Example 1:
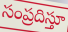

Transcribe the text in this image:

సంప్రదిస్తూ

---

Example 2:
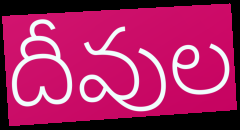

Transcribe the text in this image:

దీవుల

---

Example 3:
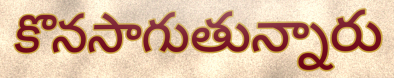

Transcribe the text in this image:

కొనసాగుతున్నారు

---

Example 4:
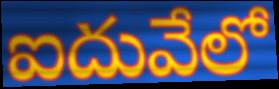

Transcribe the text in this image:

ఐదువేలో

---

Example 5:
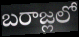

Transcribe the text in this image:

బరాజ్లలో